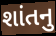
શાંતનુ